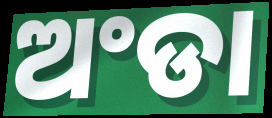
ଅଂଡା